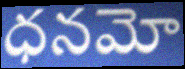
ధనమో